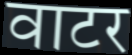
वाटर